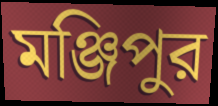
মঞ্জিপুর